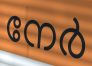
നേർ